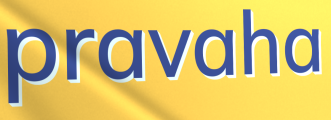
pravaha